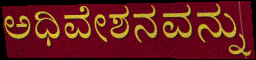
ಅಧಿವೇಶನವನ್ನು